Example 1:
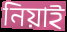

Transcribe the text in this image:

নিয়াই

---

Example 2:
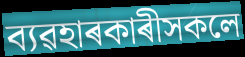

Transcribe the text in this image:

ব্যৱহাৰকাৰীসকলে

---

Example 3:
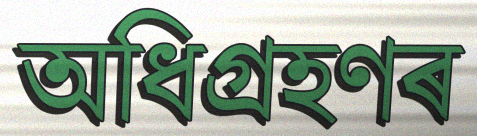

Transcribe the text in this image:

অধিগ্ৰহণৰ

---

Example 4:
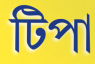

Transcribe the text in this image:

টিপা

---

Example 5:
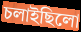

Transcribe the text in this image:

চলাইছিলো